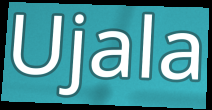
Ujala